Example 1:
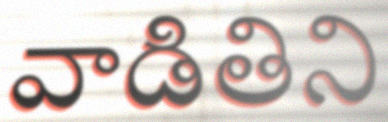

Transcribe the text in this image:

వాడితిని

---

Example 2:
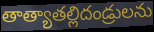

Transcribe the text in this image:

తాత్యాతల్లిదండ్రులను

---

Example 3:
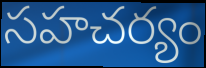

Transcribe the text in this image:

సహచర్యం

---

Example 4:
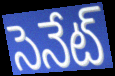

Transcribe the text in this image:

సెనేట్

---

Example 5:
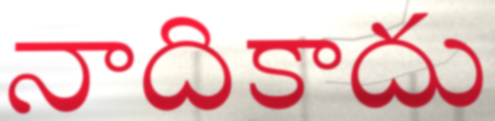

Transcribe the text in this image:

నాదికాదు